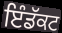
ਇੰਡੱਕਟ